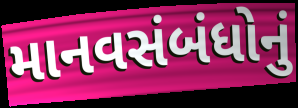
માનવસંબંધોનું